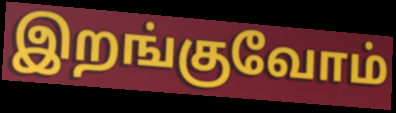
இறங்குவோம்